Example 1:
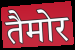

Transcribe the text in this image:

तैमोर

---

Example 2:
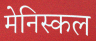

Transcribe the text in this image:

मेनिस्कल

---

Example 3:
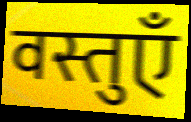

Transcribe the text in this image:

वस्‍तुएँ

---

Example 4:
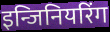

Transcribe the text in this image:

इन्जिनियरिंग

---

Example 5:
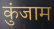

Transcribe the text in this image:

कुंजाम